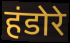
हंडोरे